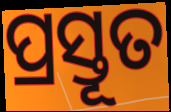
ପ୍ରସ୍ତୂତ